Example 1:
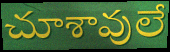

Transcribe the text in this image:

చూశావులే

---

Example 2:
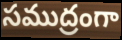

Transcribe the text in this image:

సముద్రంగా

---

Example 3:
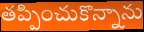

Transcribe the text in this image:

తప్పించుకొన్నాను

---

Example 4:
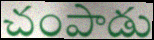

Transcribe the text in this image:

చంపాడు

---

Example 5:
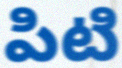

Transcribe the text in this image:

పిటి